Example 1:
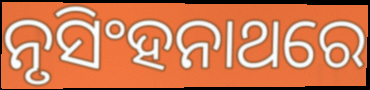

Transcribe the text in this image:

ନୃସିଂହନାଥରେ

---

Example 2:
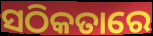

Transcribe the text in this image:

ସଠିକତାରେ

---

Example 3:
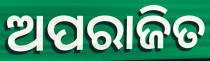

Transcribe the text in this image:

ଅପରାଜିତ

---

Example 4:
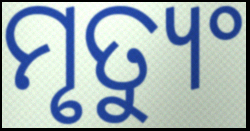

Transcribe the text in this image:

ମୃତ୍ୟୁଂ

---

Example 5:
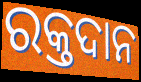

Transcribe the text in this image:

ରକ୍ତଦାନ